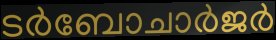
ടർബോചാർജർ